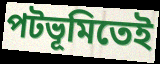
পটভূমিতেই